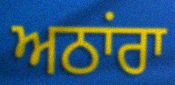
ਅਠਾਂਰਾ